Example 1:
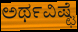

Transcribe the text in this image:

ಅರ್ಥವಿಷ್ಟೆ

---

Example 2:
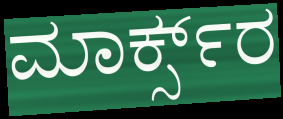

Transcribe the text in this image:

ಮಾರ್ಕ್ಸ್‌ರ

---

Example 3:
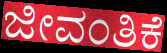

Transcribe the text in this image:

ಜೀವಂತಿಕೆ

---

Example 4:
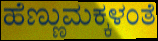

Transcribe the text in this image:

ಹೆಣ್ಣುಮಕ್ಕಳಂತೆ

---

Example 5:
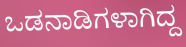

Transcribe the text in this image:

ಒಡನಾಡಿಗಳಾಗಿದ್ದ